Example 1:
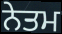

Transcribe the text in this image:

ਨੇਤਮ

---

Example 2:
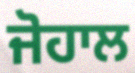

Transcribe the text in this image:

ਜੋਹਾਲ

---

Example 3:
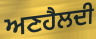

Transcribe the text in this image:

ਅਣਹੈਲਦੀ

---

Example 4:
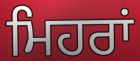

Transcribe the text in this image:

ਮਿਹਰਾਂ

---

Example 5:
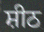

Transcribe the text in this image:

ਸ਼ੀਠ